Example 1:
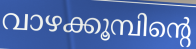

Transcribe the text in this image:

വാഴക്കൂമ്പിന്റെ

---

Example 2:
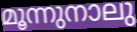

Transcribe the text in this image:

മൂന്നുനാലു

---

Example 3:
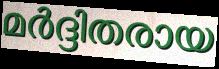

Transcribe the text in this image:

മർദ്ദിതരായ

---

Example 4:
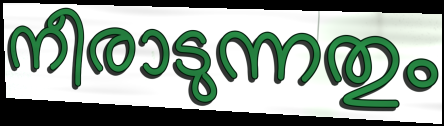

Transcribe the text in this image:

നീരാടുന്നതും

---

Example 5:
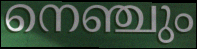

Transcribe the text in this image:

നെഞ്ചും